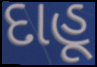
દાહૂ